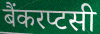
बैंकरप्टसी